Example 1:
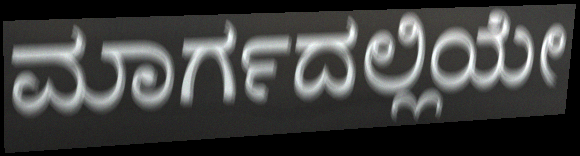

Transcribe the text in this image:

ಮಾರ್ಗದಲ್ಲಿಯೇ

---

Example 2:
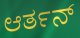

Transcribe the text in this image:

ಆರ್ತನ್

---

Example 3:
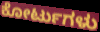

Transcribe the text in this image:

ಕೋರ್ಟುಗಳು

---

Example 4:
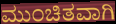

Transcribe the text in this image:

ಮುಂಚಿತವಾಗಿ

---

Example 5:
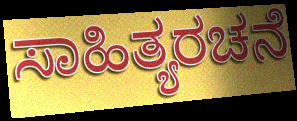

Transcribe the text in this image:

ಸಾಹಿತ್ಯರಚನೆ